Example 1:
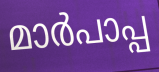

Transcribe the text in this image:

മാർപാപ്പ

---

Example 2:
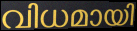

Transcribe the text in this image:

വിധമായി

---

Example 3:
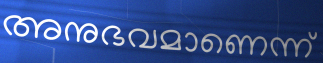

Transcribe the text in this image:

അനുഭവമാണെന്ന്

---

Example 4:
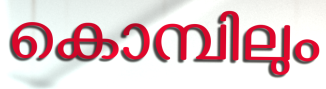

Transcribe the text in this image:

കൊമ്പിലും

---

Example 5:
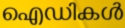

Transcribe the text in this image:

ഐഡികൾ